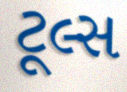
ટૂલ્સ